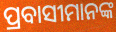
ପ୍ରବାସୀମାନଙ୍କ